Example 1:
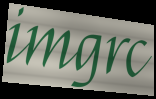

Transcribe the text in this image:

imgrc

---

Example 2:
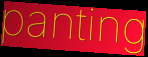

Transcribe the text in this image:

panting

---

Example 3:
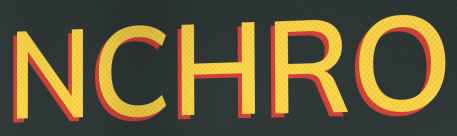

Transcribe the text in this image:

NCHRO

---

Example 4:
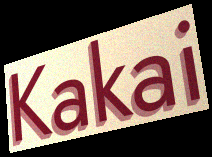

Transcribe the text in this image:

Kakai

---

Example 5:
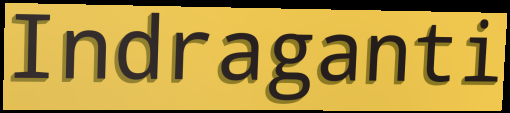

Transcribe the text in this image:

Indraganti